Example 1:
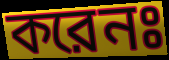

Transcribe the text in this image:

করেনঃ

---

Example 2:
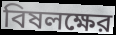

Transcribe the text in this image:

বিষলক্ষের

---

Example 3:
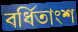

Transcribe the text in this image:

বর্ধিতাংশ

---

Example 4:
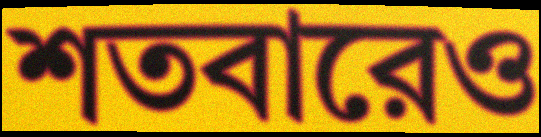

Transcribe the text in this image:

শতবারেও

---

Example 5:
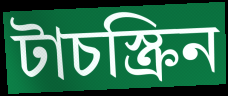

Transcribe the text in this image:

টাচস্ক্রিন